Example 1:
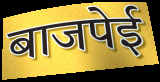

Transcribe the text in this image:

बाजपेई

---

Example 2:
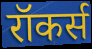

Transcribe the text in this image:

रॉकर्स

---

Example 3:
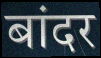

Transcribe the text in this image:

बांदर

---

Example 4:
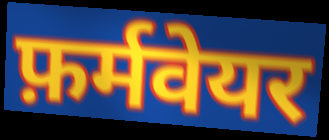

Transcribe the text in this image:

फ़र्मवेयर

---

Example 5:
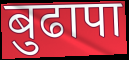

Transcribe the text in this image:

बुढापा